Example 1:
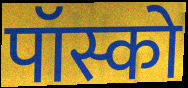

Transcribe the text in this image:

पॉस्‍को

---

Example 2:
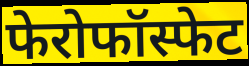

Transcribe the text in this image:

फेरोफॉस्फेट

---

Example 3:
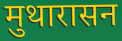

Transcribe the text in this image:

मुथारासन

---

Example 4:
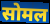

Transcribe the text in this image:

सोमल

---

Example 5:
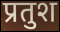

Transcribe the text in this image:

प्रतुश